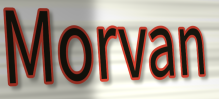
Morvan